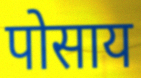
पोसाय